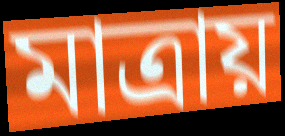
মাত্রায়